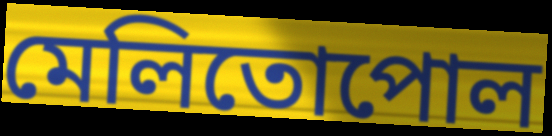
মেলিতোপোল